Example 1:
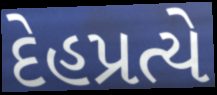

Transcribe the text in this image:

દેહપ્રત્યે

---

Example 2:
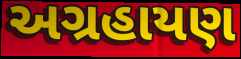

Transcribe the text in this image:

અગ્રહાયણ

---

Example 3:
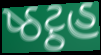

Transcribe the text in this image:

ષ્ઠટ્ઠહ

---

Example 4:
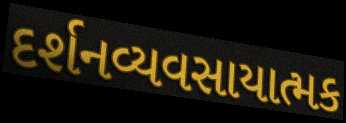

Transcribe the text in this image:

દર્શનવ્યવસાયાત્મક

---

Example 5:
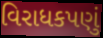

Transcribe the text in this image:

વિરાધકપણું